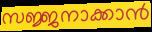
സജ്ജനാക്കാൻ